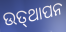
ଉତ୍‍ଥାପନ